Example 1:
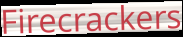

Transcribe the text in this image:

Firecrackers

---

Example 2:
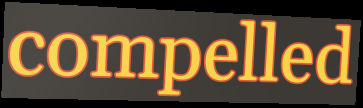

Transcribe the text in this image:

compelled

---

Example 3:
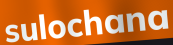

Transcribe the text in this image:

sulochana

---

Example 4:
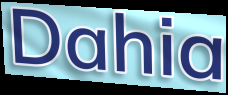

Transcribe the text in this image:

Dahia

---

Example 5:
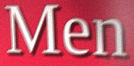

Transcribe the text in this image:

Men